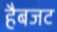
हैबजट